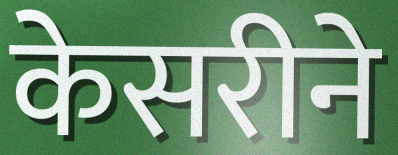
केसरीने